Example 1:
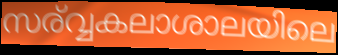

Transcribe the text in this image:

സര്വ്വകലാശാലയിലെ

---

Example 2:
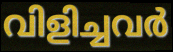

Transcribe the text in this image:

വിളിച്ചവർ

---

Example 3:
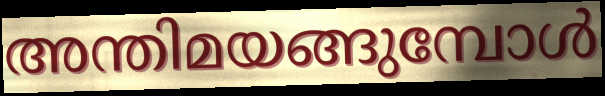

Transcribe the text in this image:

അന്തിമയങ്ങുമ്പോൾ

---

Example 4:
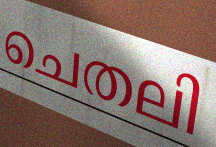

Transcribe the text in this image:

ചെതലി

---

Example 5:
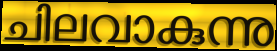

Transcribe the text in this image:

ചിലവാകുന്നു